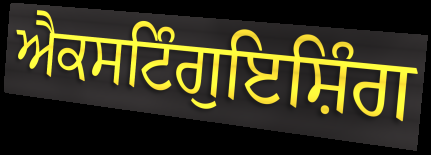
ਐਕਸਟਿੰਗੁਇਸ਼ਿੰਗ